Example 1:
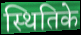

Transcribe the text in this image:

स्थितिके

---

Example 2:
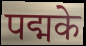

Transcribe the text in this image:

पद्मके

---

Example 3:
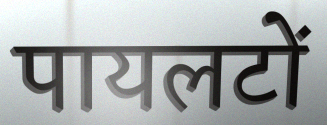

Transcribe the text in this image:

पायलटों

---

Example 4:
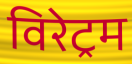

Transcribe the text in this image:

विरेट्रम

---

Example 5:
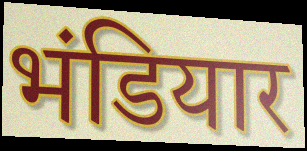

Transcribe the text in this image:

भंडियार